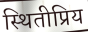
स्थितीप्रिय